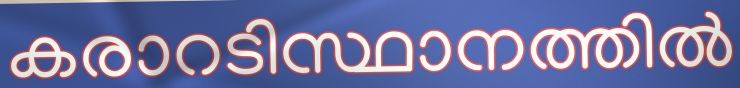
കരാറടിസ്ഥാനത്തിൽ